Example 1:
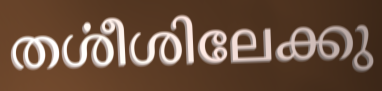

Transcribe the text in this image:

തൎശീശിലേക്കു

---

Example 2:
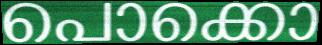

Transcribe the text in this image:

പൊക്കൊ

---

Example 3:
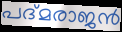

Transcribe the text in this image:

പദ്മരാജൻ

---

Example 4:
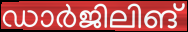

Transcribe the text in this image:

ഡാർജിലിങ്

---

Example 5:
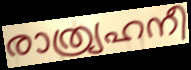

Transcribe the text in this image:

രാത്ര്യഹനീ